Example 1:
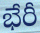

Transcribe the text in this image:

భేరీ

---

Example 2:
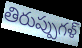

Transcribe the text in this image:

తిరుప్పుగళ్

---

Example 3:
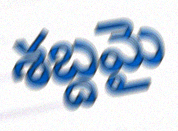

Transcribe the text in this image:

శబ్దమై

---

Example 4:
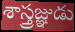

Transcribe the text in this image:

శాస్త్రజ్ఞుడు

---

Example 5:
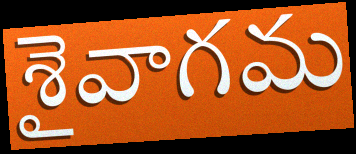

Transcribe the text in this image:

శైవాగమ